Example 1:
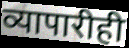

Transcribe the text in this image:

व्यापारीही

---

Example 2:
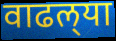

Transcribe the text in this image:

वाढल्या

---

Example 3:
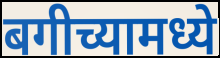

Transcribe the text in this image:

बगीच्यामध्ये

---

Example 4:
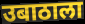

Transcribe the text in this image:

उबाठाला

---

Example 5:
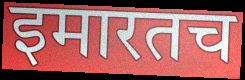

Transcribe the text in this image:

इमारतच